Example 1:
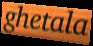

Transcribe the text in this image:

ghetala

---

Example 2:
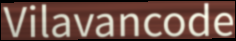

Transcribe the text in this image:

Vilavancode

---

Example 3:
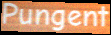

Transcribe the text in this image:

Pungent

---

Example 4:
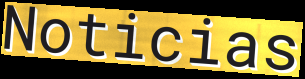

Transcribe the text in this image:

Noticias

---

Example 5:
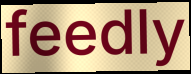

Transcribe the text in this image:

feedly